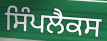
ਸਿੰਪਲੈਕਸ